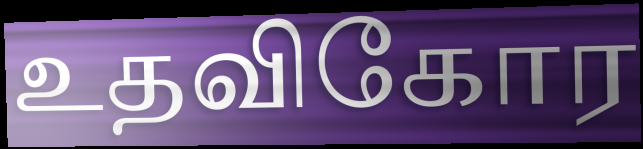
உதவிகோர